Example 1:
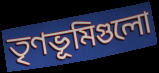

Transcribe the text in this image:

তৃণভূমিগুলো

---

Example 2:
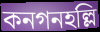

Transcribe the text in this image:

কনগনহল্লি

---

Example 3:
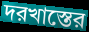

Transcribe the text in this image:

দরখাস্তের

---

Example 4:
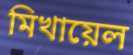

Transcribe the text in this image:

মিখায়েল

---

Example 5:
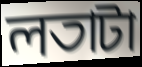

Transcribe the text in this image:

লতাটা